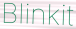
Blinkit